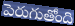
పెరుగుతోంది